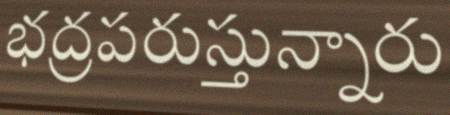
భద్రపరుస్తున్నారు